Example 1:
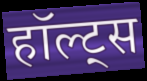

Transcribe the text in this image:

हॉल्ट्स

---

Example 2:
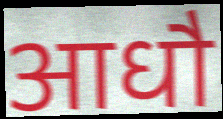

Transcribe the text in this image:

आधौ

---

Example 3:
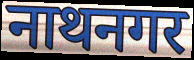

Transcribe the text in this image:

नाथनगर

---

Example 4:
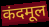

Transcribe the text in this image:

कंदमूल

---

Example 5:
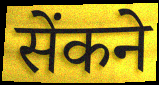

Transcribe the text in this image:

सेंकने